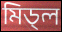
মিড্‌ল